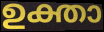
ഉക്താ